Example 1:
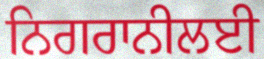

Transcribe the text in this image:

ਨਿਗਰਾਨੀਲਈ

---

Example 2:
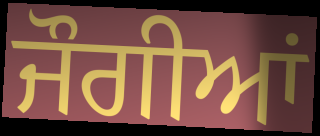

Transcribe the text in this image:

ਜੌਗੀਆਂ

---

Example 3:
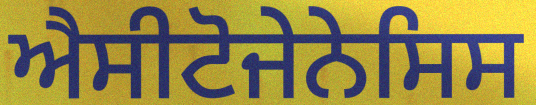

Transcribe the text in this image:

ਐਸੀਟੋਜੇਨੇਸਿਸ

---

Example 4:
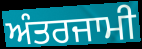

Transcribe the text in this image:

ਅੰਤਰਜਾਮੀ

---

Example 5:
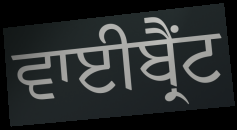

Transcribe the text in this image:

ਵਾਈਬ੍ਰੈਂਟ